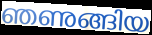
ഞണുങ്ങിയ